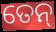
ତେନ୍